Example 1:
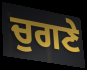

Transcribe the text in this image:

ਚੁਗਣੇ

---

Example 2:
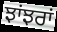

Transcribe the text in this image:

ਝਾਂਝਰਾਂ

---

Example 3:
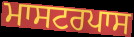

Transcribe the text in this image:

ਮਾਸਟਰਪਾਸ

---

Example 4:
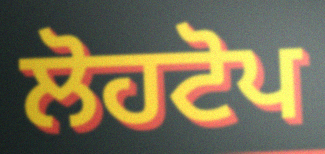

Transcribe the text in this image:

ਲੋਹਟੋਪ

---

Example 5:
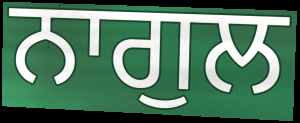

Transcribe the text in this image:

ਨਾਗੁਲ